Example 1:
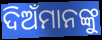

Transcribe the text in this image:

ଦିଅଁମାନଙ୍କୁ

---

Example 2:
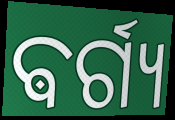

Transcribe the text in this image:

ଵର୍ଗ୍ଯ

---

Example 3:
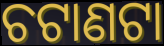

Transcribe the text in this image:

ଚଟାଣଟା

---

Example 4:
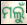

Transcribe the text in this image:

ମଲୁଁ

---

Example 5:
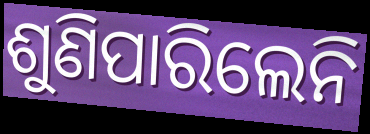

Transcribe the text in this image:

ଶୁଣିପାରିଲେନି